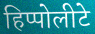
हिप्पोलीटे